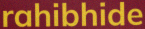
rahibhide